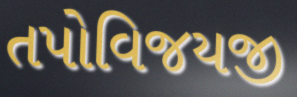
તપોવિજયજી